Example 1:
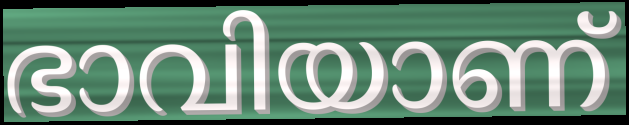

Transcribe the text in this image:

ഭാവിയാണ്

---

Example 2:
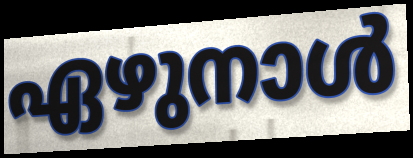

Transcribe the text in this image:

ഏഴുനാൾ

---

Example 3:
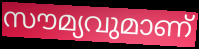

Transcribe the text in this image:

സൗമ്യവുമാണ്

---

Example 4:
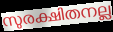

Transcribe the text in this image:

സുരക്ഷിതനല്ല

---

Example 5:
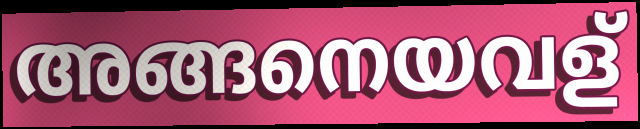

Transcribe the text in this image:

അങ്ങനെയവള്